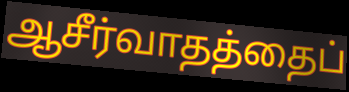
ஆசீர்வாதத்தைப்